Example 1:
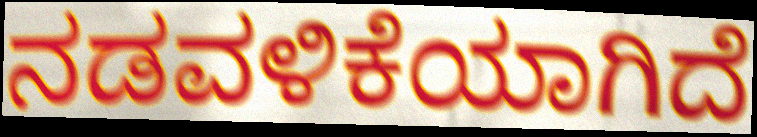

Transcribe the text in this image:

ನಡವಳಿಕೆಯಾಗಿದೆ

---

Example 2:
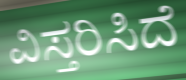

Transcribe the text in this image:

ವಿಸ್ತರಿಸಿದೆ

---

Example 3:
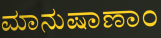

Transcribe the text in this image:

ಮಾನುಷಾಣಾಂ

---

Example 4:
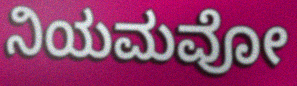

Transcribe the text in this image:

ನಿಯಮವೋ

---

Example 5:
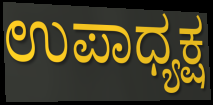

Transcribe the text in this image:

ಉಪಾಧ್ಯಕ್ಷ